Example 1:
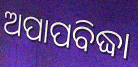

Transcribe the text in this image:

ଅପାପବିଦ୍ଧା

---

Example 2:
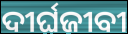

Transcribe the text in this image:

ଦୀର୍ଘଜୀବୀ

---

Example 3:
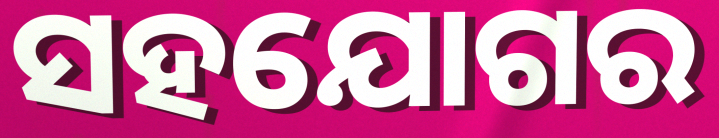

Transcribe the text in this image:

ସହଯୋଗର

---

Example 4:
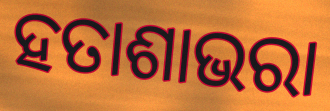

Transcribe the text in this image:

ହତାଶାଭରା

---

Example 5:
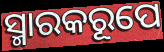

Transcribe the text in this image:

ସ୍ମାରକରୂପେ